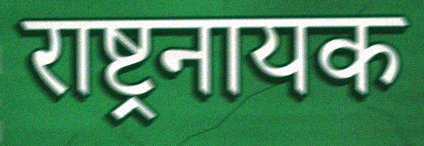
राष्ट्रनायक